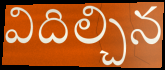
విదిల్చిన